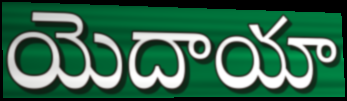
యెదాయా